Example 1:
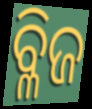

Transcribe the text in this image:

ବ୍ଳିଜ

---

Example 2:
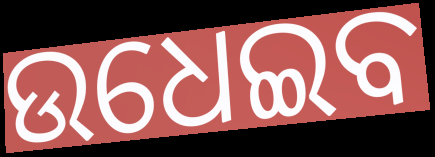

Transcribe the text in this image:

ଉଧେଇବ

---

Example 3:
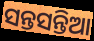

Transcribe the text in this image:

ସନ୍ତସନ୍ତିଆ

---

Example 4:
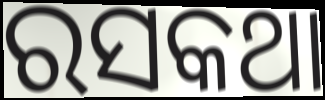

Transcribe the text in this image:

ରସକଥା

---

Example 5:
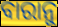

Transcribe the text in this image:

ବାରାନୁ